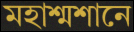
মহাশ্মশানে